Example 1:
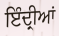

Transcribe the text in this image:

ਇੰਦ੍ਰੀਆਂ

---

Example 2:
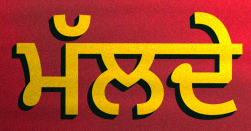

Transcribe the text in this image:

ਮੱਲਦੇ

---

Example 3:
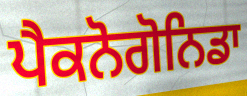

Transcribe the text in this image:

ਪੈਕਨੋਗੋਨਿਡਾ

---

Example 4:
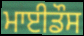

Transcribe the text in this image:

ਮਾਈਡੌਸ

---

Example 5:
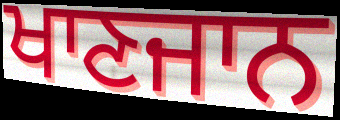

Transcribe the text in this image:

ਖਾਣਜਾਨ